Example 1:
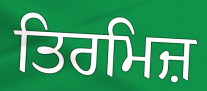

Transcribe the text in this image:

ਤਿਰਮਿਜ਼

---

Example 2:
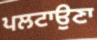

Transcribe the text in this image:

ਪਲਟਾਉਣਾ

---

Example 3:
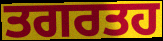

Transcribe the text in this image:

ਤਗਰਤਹ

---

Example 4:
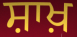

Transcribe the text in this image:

ਸ਼ਾਖ਼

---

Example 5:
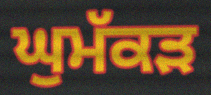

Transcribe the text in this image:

ਘੁਮੱਕਡ਼